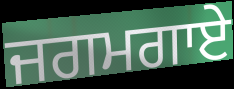
ਜਗਮਗਾਏ